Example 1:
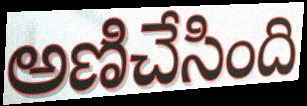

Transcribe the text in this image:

అణిచేసింది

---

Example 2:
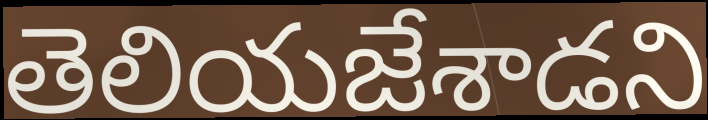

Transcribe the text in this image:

తెలియజేశాడని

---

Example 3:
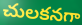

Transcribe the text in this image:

చులకనగా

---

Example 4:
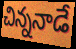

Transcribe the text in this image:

చిన్ననాడే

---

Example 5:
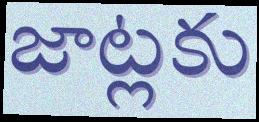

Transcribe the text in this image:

జాట్లకు